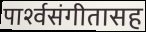
पार्श्वसंगीतासह